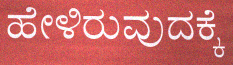
ಹೇಳಿರುವುದಕ್ಕೆ